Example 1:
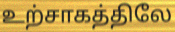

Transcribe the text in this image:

உற்சாகத்திலே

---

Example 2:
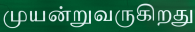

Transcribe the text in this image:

முயன்றுவருகிறது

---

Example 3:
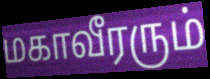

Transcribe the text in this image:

மகாவீரரும்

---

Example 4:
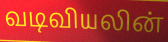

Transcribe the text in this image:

வடிவியலின்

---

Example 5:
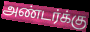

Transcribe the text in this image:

அண்டர்க்கு